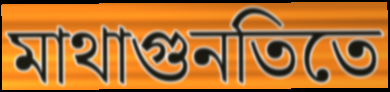
মাথাগুনতিতে